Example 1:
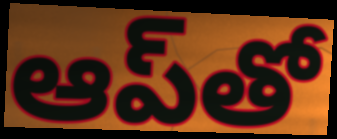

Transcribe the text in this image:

ఆప్‌తో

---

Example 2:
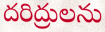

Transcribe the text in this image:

దరిద్రులను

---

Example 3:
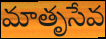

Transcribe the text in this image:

మాతృసేవ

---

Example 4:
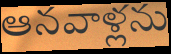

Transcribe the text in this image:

ఆనవాళ్లను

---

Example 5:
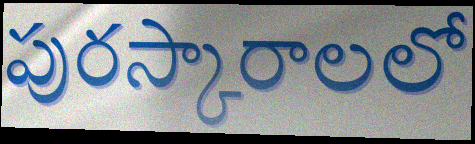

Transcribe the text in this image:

పురస్కారాలలో